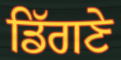
ਡਿੱਗਣੇ